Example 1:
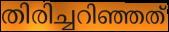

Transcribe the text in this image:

തിരിച്ചറിഞ്ഞത്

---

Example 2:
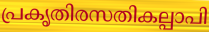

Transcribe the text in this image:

പ്രകൃതിരസതികല്പാപി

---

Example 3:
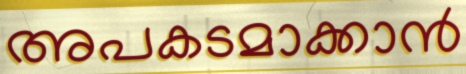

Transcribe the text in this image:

അപകടമാക്കാൻ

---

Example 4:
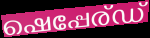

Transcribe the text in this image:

ഷെപ്പേര്ഡ്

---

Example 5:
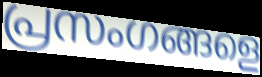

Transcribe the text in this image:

പ്രസംഗങ്ങളെ